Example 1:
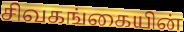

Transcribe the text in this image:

சிவகங்கையின்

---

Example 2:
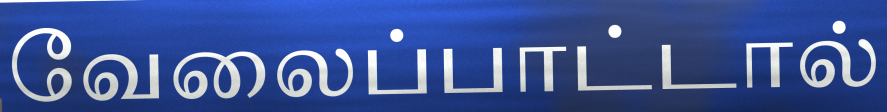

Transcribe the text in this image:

வேலைப்பாட்டால்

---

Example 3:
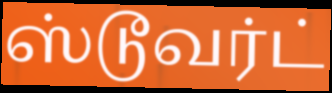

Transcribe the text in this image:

ஸ்டூவர்ட்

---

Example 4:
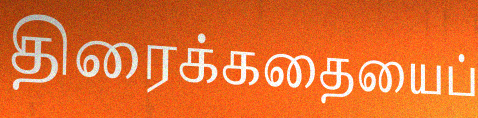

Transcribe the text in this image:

திரைக்கதையைப்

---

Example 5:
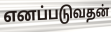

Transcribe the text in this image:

எனப்படுவதன்